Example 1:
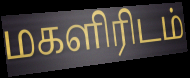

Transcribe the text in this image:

மகளிரிடம்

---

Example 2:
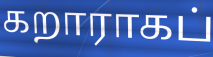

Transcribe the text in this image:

கறாராகப்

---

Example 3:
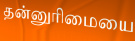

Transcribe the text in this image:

தன்னுரிமையை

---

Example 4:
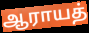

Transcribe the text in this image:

ஆராயத்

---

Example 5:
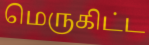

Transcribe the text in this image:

மெருகிட்ட